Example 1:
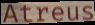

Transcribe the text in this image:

Atreus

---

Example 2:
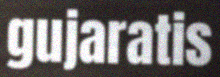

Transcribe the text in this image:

gujaratis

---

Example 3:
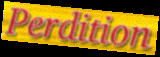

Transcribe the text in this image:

Perdition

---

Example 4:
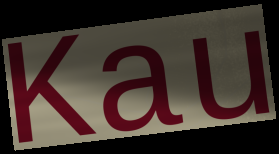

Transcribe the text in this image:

Kau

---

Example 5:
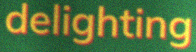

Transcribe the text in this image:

delighting